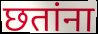
छतांना